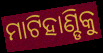
ମାଟିହାଣ୍ଡିକୁ